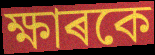
ক্ষাৰকে